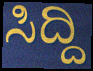
ಸಿದ್ದಿ